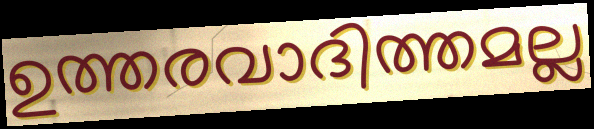
ഉത്തരവാദിത്തമല്ല